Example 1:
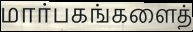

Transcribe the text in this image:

மார்பகங்களைத்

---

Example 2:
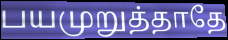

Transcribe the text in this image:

பயமுறுத்தாதே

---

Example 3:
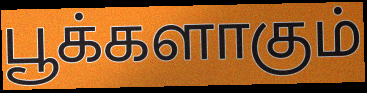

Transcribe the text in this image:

பூக்களாகும்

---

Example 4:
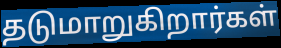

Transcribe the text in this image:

தடுமாறுகிறார்கள்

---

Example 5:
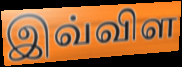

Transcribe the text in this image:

இவ்விள